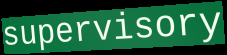
supervisory